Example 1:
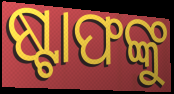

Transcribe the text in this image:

ଷ୍ଟାଫଙ୍କୁ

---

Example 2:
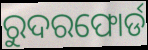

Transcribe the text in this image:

ରୁଦରଫୋର୍ଡ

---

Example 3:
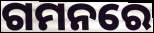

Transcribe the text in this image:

ଗମନରେ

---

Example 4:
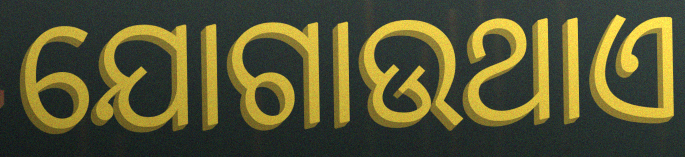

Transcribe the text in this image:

ଯୋଗାଉଥାଏ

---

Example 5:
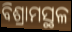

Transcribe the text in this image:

ବିଶ୍ରାମସ୍ଥଳ